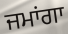
ਜਮਾਂਗਾ